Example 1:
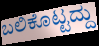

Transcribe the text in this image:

ಬಲಿಕೊಟ್ಟದ್ದು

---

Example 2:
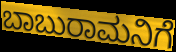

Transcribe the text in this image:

ಬಾಬುರಾಮನಿಗೆ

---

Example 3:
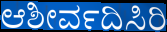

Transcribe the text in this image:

ಆಶೀರ್ವದಿಸಿರಿ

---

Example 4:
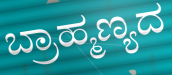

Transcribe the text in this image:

ಬ್ರಾಹ್ಮಣ್ಯದ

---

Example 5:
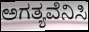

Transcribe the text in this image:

ಅಗತ್ಯವೆನಿಸಿ